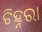
ଚିହ୍ନରା